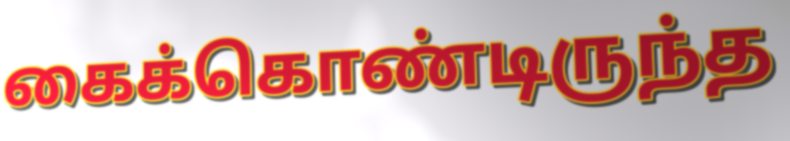
கைக்கொண்டிருந்த